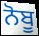
ਨੋਬੂ